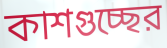
কাশগুচ্ছের